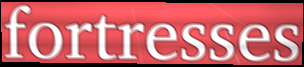
fortresses